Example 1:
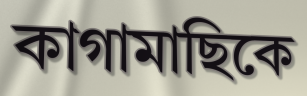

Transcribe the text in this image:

কাগামাছিকে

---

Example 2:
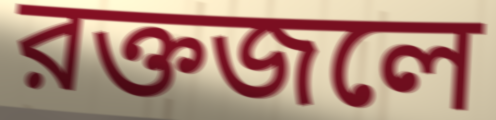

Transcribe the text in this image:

রক্তজলে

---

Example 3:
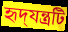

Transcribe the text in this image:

হৃদ্‌যন্ত্রটি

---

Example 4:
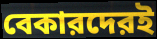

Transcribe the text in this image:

বেকারদেরই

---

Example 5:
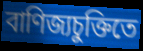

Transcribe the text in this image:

বাণিজ্যচুক্তিতে